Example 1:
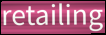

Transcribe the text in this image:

retailing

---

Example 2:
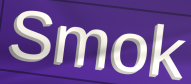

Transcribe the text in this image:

Smok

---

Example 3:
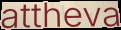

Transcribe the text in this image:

attheva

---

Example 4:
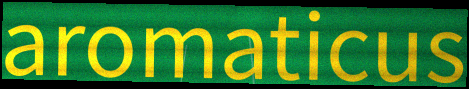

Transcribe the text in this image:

aromaticus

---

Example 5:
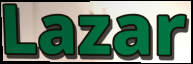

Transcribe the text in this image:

Lazar